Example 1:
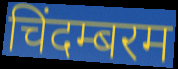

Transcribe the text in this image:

चिंदम्बरम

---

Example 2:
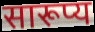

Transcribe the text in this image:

सारूप्य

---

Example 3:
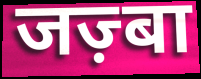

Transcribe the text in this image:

जज़्बा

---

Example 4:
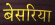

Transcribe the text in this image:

बेसरिया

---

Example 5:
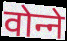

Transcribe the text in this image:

वोन्ने